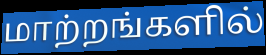
மாற்றங்களில்